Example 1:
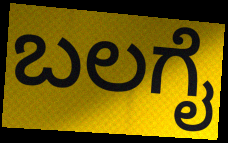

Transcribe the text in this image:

ಬಲಗೈ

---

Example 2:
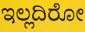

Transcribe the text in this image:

ಇಲ್ಲದಿರೋ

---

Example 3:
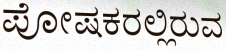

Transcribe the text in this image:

ಪೋಷಕರಲ್ಲಿರುವ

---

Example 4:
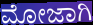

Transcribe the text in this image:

ಮೋಜಾಗಿ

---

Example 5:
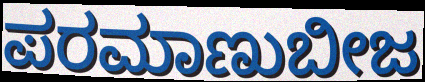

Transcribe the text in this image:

ಪರಮಾಣುಬೀಜ